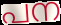
പന